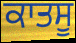
ਕਾਤਸੂ